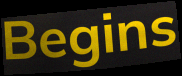
Begins